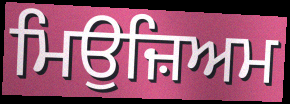
ਮਿਉਜ਼ਿਅਮ